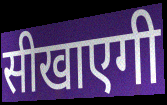
सीखाएगी